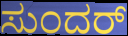
ಸುಂದರ್